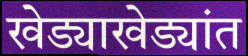
खेड्याखेड्यांत